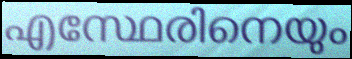
എസ്ഥേരിനെയും